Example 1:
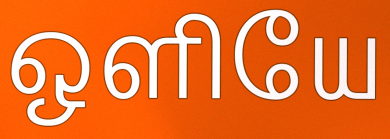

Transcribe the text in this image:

ஒளியே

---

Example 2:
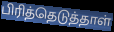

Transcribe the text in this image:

பிரித்தெடுத்தாள்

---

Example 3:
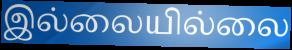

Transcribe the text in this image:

இல்லையில்லை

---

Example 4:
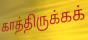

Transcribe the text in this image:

காத்திருக்கக்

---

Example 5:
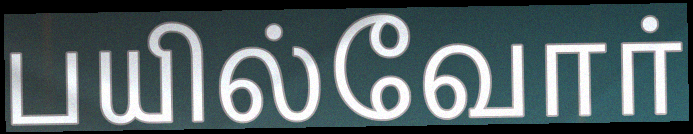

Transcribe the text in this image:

பயில்வோர்